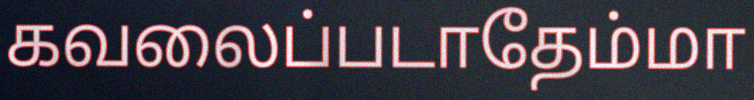
கவலைப்படாதேம்மா